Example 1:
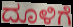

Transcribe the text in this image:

ದೂಳಿಗೆ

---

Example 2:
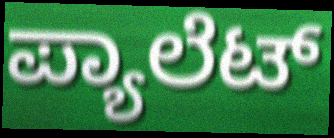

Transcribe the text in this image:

ಪ್ಯಾಲೆಟ್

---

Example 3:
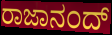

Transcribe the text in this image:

ರಾಜಾನಂದ್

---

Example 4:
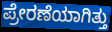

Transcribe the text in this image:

ಪ್ರೇರಣೆಯಾಗಿತ್ತು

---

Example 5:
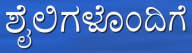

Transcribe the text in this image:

ಶೈಲಿಗಳೊಂದಿಗೆ